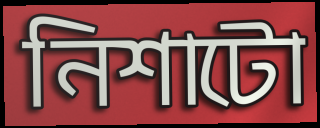
নিশাটো